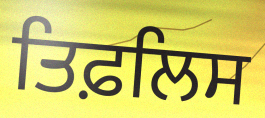
ਤਿਫ਼ਲਿਸ